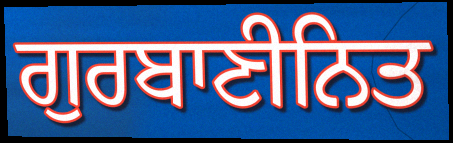
ਗੁਰਬਾਣੀਨਿਤ